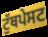
ਟੁੱਥਪੇਸਟ